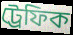
ট্ৰেফিক